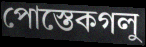
পোস্তেকগলু